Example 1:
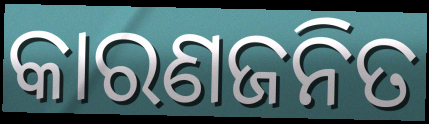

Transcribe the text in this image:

କାରଣଜନିତ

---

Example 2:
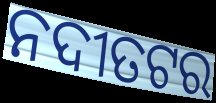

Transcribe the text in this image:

ନଦୀତଟର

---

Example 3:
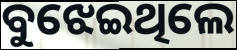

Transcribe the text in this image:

ବୁଝେଇଥିଲେ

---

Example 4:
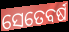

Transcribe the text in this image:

ସେତେବର୍ଷ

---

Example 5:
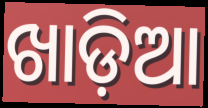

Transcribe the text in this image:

ଖାଡ଼ିଆ